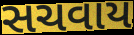
સચવાય